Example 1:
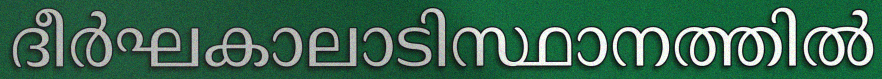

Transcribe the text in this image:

ദീർഘകാലാടിസ്ഥാനത്തിൽ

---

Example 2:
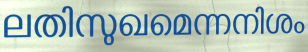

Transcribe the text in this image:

ലതിസുഖമെന്നനിശം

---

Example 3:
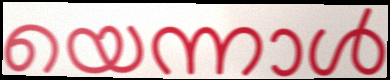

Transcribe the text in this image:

യെന്നാൾ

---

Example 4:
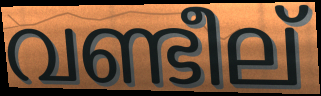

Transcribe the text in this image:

വണ്ടീല്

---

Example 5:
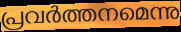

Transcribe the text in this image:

പ്രവർത്തനമെന്നു